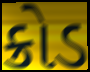
ક્રોડ